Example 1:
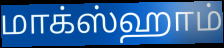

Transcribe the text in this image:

மாக்ஸ்ஹாம்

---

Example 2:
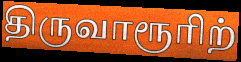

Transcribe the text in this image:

திருவாரூரிற்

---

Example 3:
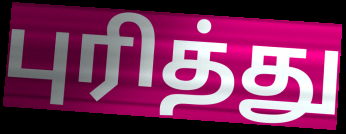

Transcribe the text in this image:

புரித்து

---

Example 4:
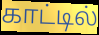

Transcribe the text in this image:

காட்டில்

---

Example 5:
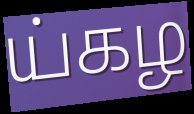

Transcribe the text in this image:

ய்கழ